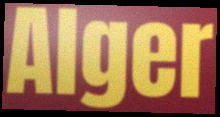
Alger